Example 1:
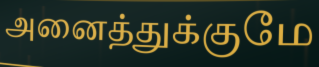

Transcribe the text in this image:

அனைத்துக்குமே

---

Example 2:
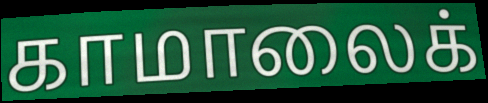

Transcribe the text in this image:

காமாலைக்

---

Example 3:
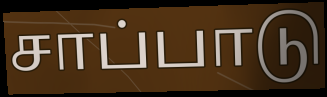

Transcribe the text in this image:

சாப்பாடு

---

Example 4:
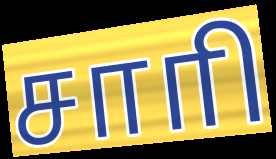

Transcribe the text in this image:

சாரி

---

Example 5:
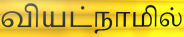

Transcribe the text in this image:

வியட்நாமில்